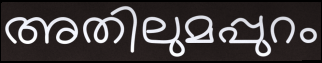
അതിലുമപ്പുറം